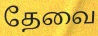
தேவை